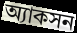
অ্যাকসন